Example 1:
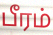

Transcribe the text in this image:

பீரம்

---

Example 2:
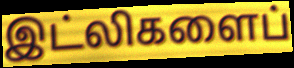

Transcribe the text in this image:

இட்லிகளைப்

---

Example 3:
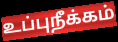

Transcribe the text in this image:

உப்புநீக்கம்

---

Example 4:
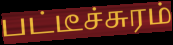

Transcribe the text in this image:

பட்டீச்சுரம்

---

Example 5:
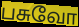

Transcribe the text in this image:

பசுவோ